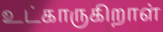
உட்காருகிறாள்